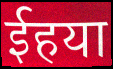
ईहया